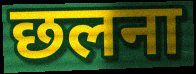
छलना